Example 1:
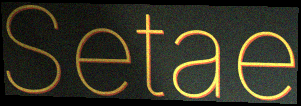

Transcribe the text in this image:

Setae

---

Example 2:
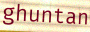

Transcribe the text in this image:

ghuntan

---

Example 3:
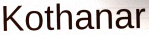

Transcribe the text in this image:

Kothanar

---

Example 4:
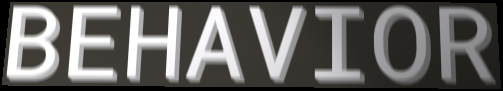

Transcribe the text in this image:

BEHAVIOR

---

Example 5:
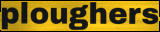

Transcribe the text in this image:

ploughers